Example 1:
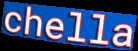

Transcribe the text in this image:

chella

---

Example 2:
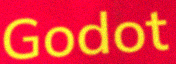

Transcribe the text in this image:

Godot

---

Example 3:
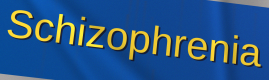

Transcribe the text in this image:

Schizophrenia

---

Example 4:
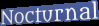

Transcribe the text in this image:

Nocturnal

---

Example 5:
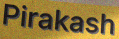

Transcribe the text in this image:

Pirakash